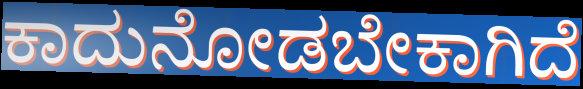
ಕಾದುನೋಡಬೇಕಾಗಿದೆ